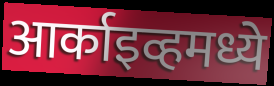
आर्काइव्हमध्ये